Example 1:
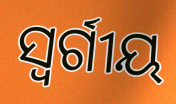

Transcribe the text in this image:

ସ୍ୱର୍ଗୀୟ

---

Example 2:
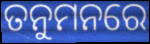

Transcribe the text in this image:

ତନୁମନରେ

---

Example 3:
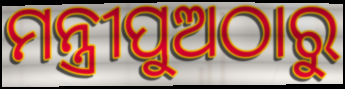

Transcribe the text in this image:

ମନ୍ତ୍ରୀପୁଅଠାରୁ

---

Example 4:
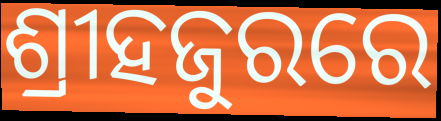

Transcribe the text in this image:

ଶ୍ରୀହଜୁରରେ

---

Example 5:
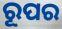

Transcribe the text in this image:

ରୂପର